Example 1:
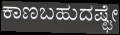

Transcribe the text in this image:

ಕಾಣಬಹುದಷ್ಟೇ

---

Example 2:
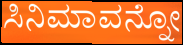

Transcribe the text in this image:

ಸಿನಿಮಾವನ್ನೋ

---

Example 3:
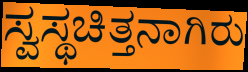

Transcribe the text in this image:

ಸ್ವಸ್ಥಚಿತ್ತನಾಗಿರು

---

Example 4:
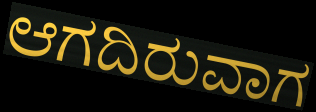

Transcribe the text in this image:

ಆಗದಿರುವಾಗ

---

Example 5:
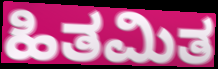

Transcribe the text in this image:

ಹಿತಮಿತ